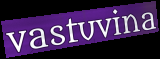
vastuvina